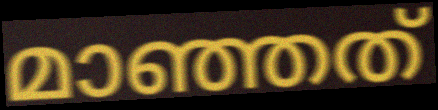
മാഞ്ഞത്